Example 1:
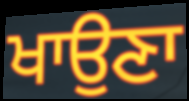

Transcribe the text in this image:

ਖਾਉਣਾ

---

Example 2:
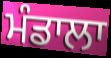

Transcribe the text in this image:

ਮੰਡਾਲਾ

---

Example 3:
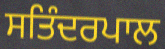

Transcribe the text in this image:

ਸਤਿੰਦਰਪਾਲ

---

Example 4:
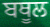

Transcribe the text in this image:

ਬਥੂਲ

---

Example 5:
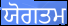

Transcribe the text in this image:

ਯੋਗਤਮ